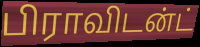
பிராவிடன்ட்